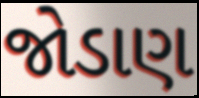
જોડાણ